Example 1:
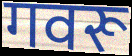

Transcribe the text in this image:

गवरू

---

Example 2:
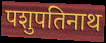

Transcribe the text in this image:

पशुपतिनाथ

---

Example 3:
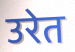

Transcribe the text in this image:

उरेत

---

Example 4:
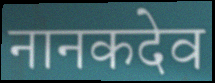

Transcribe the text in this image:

नानकदेव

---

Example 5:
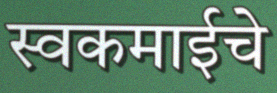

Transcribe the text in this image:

स्वकमाईचे